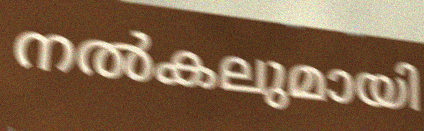
നൽകലുമായി